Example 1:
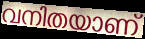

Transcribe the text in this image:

വനിതയാണ്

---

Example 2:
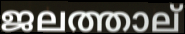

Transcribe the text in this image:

ജലത്താല്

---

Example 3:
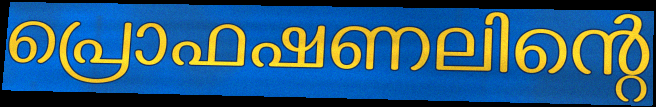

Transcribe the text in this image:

പ്രൊഫഷണലിന്റെ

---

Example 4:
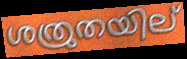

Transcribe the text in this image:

ശത്രുതയില്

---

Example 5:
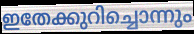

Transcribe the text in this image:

ഇതേക്കുറിച്ചൊന്നും